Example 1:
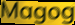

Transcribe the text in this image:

Magog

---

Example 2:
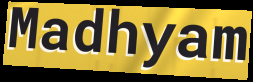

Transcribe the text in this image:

Madhyam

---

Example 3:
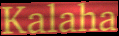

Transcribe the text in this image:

Kalaha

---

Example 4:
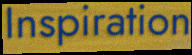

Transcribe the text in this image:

Inspiration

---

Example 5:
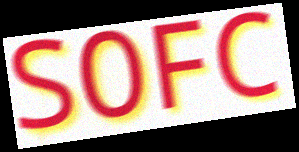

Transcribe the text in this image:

SOFC